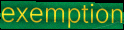
exemption